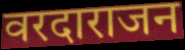
वरदाराजन